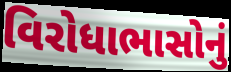
વિરોધાભાસોનું